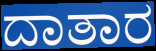
ದಾತಾರ